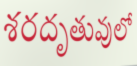
శరదృతువులో